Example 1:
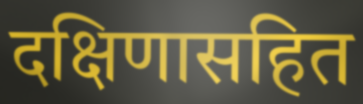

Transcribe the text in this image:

दक्षिणासहित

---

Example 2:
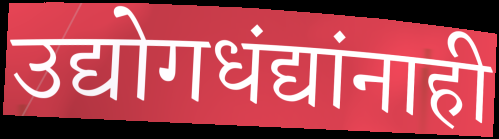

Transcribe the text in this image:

उद्योगधंद्यांनाही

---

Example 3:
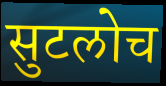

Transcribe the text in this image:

सुटलोच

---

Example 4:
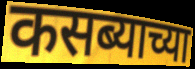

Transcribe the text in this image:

कसब्याच्या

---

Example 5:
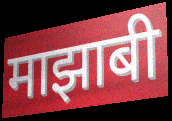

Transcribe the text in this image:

माझाबी